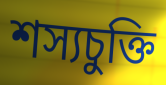
শস্যচুক্তি